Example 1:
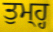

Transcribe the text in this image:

ਤੁਮ੍ਹ੍ਹ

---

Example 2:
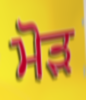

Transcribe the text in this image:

ਮੋਡ਼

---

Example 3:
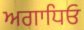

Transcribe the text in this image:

ਅਗਾਧਿਓ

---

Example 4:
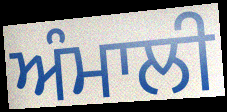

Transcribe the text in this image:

ਅੰਮਾਲੀ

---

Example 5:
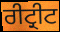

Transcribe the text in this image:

ਰੀਟ੍ਰੀਟ